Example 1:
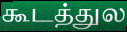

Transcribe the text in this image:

கூடத்துல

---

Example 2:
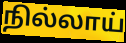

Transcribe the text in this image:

நில்லாய்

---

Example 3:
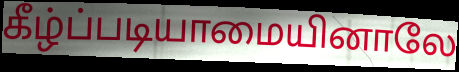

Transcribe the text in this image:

கீழ்ப்படியாமையினாலே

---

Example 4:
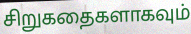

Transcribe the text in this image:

சிறுகதைகளாகவும்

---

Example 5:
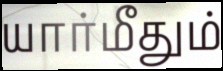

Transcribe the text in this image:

யார்மீதும்